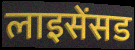
लाइसेंसड